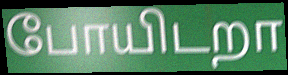
போயிடறா